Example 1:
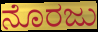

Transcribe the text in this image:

ನೊರಜು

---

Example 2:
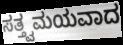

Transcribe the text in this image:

ಸತ್ತ್ವಮಯವಾದ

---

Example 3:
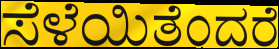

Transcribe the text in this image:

ಸೆಳೆಯಿತೆಂದರೆ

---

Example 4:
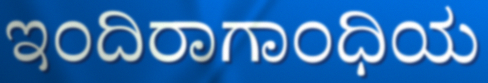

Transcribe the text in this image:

ಇಂದಿರಾಗಾಂಧಿಯ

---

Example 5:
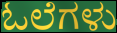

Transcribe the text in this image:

ಓಲೆಗಳು